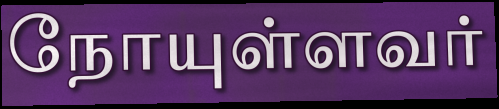
நோயுள்ளவர்